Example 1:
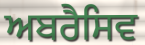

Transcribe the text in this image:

ਅਬਰੈਸਿਵ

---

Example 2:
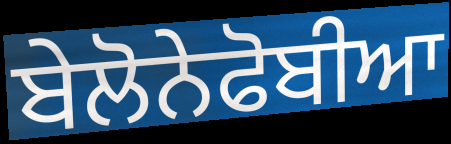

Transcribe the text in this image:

ਬੇਲੋਨੇਫੋਬੀਆ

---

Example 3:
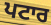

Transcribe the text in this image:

ਪਟਾਰ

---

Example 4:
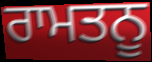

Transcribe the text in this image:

ਰਾਮਤਨੂ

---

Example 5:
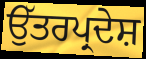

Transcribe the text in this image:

ਉੱਤਰਪ੍ਰਦੇਸ਼